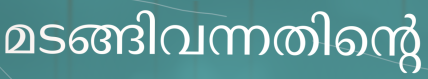
മടങ്ങിവന്നതിന്റെ